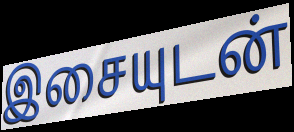
இசையுடன்